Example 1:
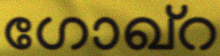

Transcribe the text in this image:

ഗോഖ്റ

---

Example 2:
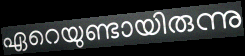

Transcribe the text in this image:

ഏറെയുണ്ടായിരുന്നു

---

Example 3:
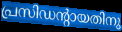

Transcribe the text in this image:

പ്രസിഡന്റായതിനു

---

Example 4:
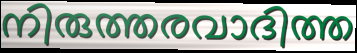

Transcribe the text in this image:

നിരുത്തരവാദിത്ത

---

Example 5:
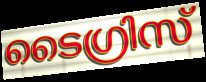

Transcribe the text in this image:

ടൈഗ്രിസ്